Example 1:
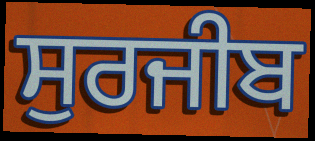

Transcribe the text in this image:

ਸੁਰਜੀਬ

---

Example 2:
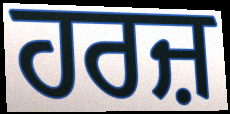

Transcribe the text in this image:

ਹਰਜ਼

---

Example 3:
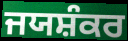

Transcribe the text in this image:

ਜਯਸ਼ੰਕਰ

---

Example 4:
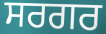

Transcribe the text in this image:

ਸਰਗਰ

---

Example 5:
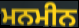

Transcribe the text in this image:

ਮਨਮੀਨ